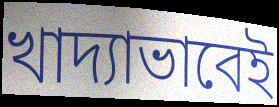
খাদ্যাভাবেই